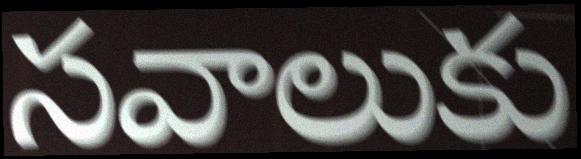
సవాలుకు